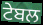
ਟੇਬਲ